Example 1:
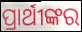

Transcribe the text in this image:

ପ୍ରାର୍ଥୀଙ୍କର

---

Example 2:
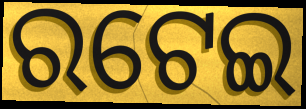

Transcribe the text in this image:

ରଟେଇ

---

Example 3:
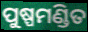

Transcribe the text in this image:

ପୁଷ୍ପମଣ୍ଡିତ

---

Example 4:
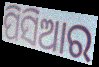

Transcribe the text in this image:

ପିସିଆର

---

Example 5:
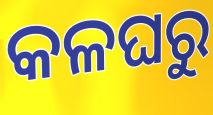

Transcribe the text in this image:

କଳଘରୁ